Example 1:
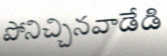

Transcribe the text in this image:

పోనిచ్చినవాడేడి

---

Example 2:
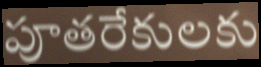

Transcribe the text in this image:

పూతరేకులకు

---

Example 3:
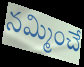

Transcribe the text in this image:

నమ్మించే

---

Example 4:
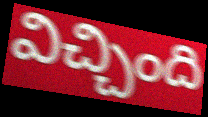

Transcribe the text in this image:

విచ్చింది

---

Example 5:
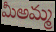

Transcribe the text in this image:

మీఅమ్మ